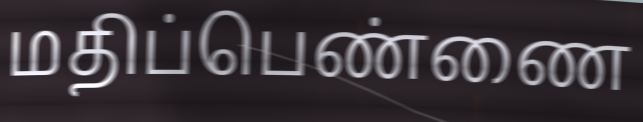
மதிப்பெண்ணை